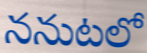
ననుటలో